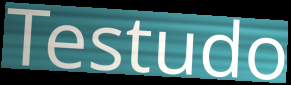
Testudo